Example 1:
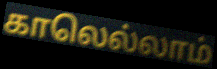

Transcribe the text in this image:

காலெல்லாம்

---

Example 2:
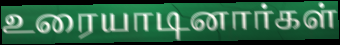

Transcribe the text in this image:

உரையாடினார்கள்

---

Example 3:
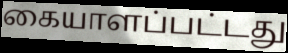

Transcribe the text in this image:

கையாளப்பட்டது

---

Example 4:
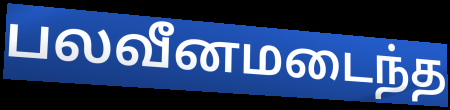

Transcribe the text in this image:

பலவீனமடைந்த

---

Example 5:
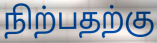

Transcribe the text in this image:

நிற்பதற்கு